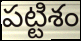
పట్టిశం